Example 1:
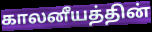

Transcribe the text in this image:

காலனீயத்தின்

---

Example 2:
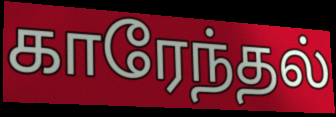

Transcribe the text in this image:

காரேந்தல்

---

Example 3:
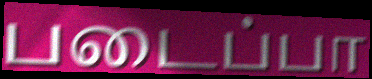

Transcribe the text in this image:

படைப்பா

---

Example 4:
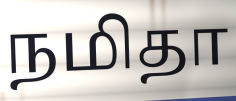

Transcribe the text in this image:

நமிதா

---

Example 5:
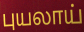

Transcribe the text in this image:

புயலாய்